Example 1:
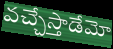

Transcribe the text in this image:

వచ్చేస్తాడేమో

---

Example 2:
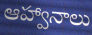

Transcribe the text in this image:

ఆహ్వానాలు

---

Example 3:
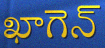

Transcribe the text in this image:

ఖాగెన్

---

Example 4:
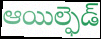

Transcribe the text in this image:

ఆయిల్ఫెడ్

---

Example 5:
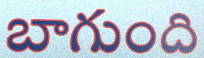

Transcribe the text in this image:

బాగుంది